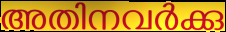
അതിനവർക്കു